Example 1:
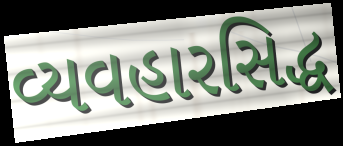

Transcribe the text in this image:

વ્યવહારસિદ્ધ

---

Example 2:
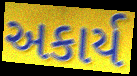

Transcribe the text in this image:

અકાર્ય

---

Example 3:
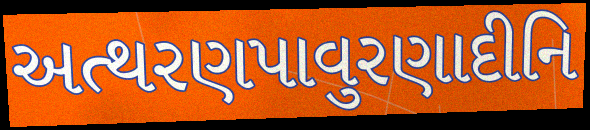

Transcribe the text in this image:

અત્થરણપાવુરણાદીનિ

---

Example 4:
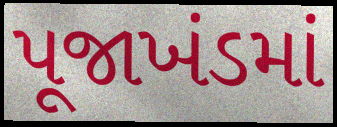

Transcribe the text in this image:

પૂજાખંડમાં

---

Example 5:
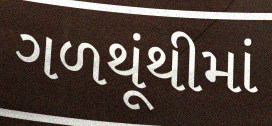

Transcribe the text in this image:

ગળથૂંથીમાં